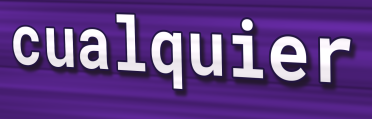
cualquier